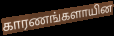
காரணங்களாயின